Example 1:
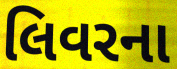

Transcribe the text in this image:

લિવરના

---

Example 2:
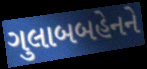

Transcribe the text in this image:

ગુલાબબહેનને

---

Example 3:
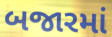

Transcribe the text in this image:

બજારમાં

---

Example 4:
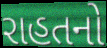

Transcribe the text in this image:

રાહતનો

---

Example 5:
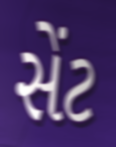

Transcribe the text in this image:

સેંટ